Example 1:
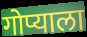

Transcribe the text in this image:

गोप्याला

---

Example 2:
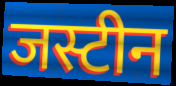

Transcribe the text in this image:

जस्टीन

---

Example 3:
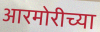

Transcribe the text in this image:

आरमोरीच्या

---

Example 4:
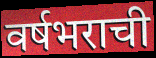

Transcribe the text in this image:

वर्षभराची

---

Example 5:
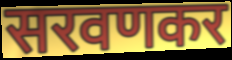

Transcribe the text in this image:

सरवणकर